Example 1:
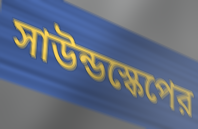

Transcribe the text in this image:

সাউন্ডস্কেপের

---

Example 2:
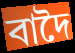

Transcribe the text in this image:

বাদৈ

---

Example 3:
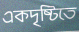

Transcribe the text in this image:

একদৃষ্টিতে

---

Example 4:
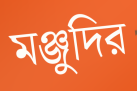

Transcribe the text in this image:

মঞ্জুদির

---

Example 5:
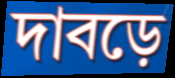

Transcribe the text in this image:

দাবড়ে